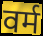
वर्म